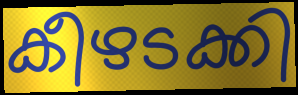
കീഴടക്കി